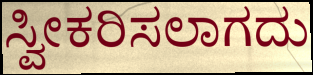
ಸ್ವೀಕರಿಸಲಾಗದು